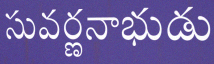
సువర్ణనాభుడు